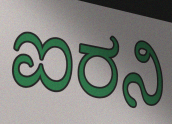
ಐರನಿ